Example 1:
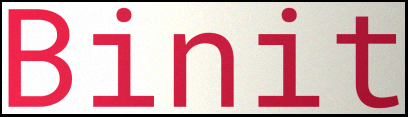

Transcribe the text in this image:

Binit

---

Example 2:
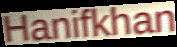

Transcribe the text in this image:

Hanifkhan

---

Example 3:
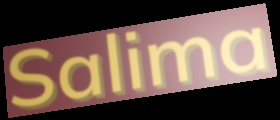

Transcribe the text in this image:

Salima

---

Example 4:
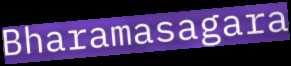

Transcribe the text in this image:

Bharamasagara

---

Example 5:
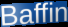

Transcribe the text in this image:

Baffin